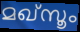
മഖ്സൂം